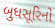
બુધસૂરિનો